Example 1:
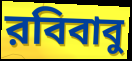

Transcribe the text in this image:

রবিবাবু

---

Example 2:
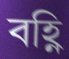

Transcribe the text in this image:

বহ্ণি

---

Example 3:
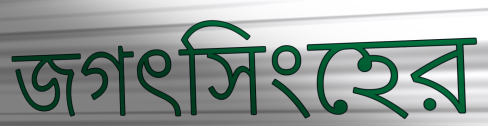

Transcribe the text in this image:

জগৎসিংহের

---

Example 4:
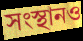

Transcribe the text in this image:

সংস্থানও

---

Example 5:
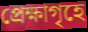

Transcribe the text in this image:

প্রেক্ষাগৃহে